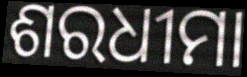
ଶରଧୀମା